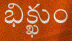
భిక్ఖుం